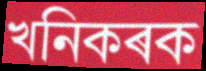
খনিকৰক